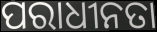
ପରାଧୀନତା